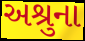
અશ્રુના